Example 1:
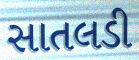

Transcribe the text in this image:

સાતલડી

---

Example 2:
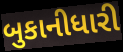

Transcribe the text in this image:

બુકાનીધારી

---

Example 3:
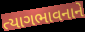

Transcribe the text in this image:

ત્યાગભાવનાને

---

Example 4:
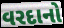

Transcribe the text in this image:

વરદાનો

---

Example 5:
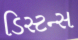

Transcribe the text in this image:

ડિસ્ટન્સ